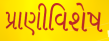
પ્રાણીવિશેષ